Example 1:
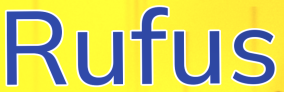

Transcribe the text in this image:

Rufus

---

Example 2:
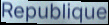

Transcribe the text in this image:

Republique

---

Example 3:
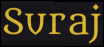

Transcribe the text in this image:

Suraj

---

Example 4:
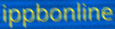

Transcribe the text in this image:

ippbonline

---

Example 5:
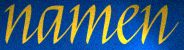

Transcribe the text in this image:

namen